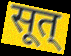
सूत्